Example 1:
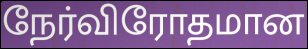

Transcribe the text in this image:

நேர்விரோதமான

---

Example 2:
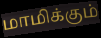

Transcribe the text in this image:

மாமிக்கும்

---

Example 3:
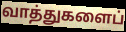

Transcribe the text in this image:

வாத்துகளைப்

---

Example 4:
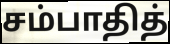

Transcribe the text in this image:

சம்பாதித்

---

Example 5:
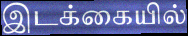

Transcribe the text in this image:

இடக்கையில்